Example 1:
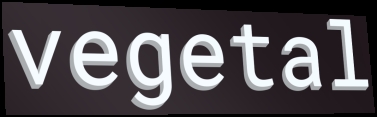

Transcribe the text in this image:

vegetal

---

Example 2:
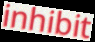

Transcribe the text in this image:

inhibit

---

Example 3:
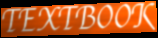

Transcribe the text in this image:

TEXTBOOK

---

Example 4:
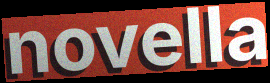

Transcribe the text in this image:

novella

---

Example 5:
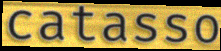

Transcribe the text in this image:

catasso